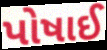
પોષાઈ